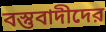
বস্তুবাদীদের